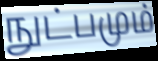
நுட்பமும்